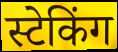
स्टेकिंग